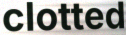
clotted